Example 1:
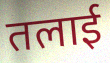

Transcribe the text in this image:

तलाई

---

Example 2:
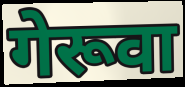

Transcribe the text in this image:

गेरूवा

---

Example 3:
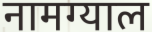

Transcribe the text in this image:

नामग्याल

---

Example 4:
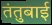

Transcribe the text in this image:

तंतुबाई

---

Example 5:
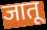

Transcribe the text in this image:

जातू